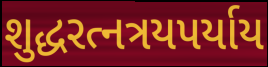
શુદ્ધરત્નત્રયપર્યાય